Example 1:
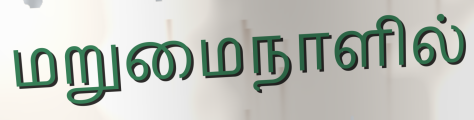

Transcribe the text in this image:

மறுமைநாளில்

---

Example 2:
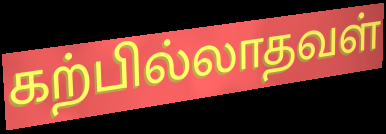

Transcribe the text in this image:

கற்பில்லாதவள்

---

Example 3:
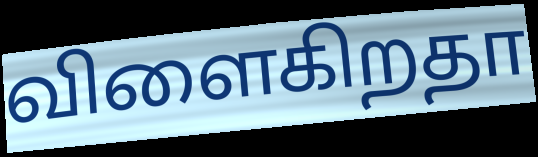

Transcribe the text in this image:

விளைகிறதா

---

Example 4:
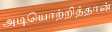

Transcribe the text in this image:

அடியொற்றித்தான்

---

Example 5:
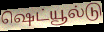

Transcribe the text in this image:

ஷெட்யூல்டு